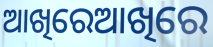
ଆଖିରେଆଖିରେ